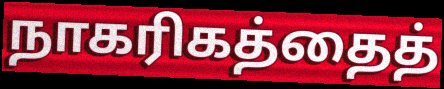
நாகரிகத்தைத்